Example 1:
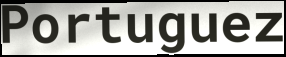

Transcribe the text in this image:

Portuguez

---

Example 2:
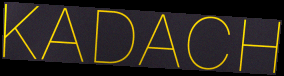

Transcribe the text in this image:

KADACH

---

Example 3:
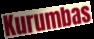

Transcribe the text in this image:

Kurumbas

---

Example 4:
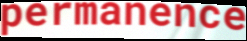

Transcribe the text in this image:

permanence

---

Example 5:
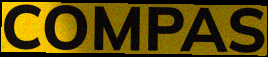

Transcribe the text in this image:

COMPAS